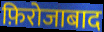
फ़िरोजाबाद